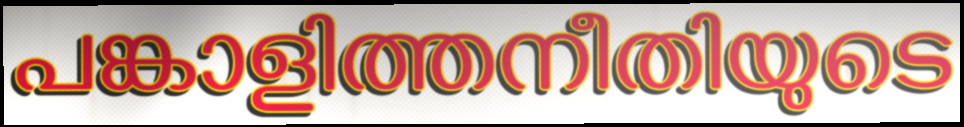
പങ്കാളിത്തനീതിയുടെ